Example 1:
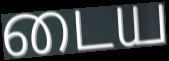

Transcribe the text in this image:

டைய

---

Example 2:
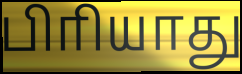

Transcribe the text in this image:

பிரியாது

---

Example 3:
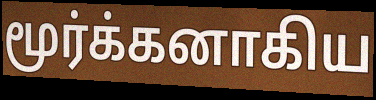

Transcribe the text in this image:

மூர்க்கனாகிய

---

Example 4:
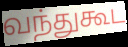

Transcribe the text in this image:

வந்துகூட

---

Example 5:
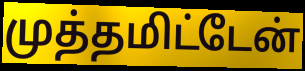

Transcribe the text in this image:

முத்தமிட்டேன்